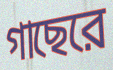
গাছেরে